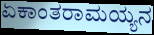
ಏಕಾಂತರಾಮಯ್ಯನ